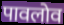
पावलोव